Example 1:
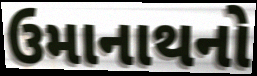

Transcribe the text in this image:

ઉમાનાથનો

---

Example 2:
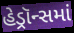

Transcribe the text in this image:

હેડ્રૉન્સમાં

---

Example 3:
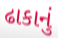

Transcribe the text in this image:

ઢાકાનું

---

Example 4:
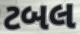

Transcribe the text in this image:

ટબલ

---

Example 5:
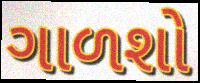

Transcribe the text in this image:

ગાળશો